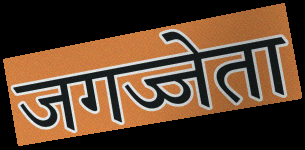
जगज्जेता